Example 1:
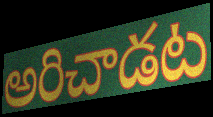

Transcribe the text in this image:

అరిచాడట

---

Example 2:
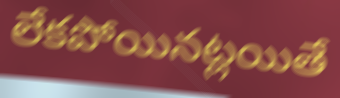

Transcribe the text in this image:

లేకపోయినట్లయితే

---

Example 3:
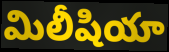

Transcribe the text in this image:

మిలీషియా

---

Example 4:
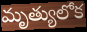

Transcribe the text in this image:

మృత్యులోక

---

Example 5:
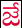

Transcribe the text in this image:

జే